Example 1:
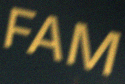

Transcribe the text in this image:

FAM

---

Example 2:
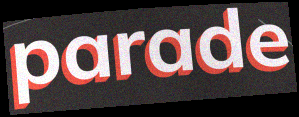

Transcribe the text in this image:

parade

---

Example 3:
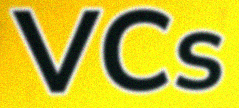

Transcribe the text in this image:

VCs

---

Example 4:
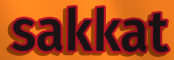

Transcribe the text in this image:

sakkat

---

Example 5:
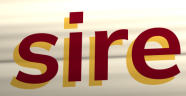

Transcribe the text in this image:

sire